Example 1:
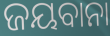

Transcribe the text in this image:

ଜୟବାନା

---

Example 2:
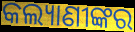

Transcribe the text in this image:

କଲ୍ୟାଣୀଙ୍କର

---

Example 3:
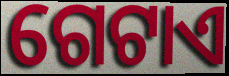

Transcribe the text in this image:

ଗେଟାଏ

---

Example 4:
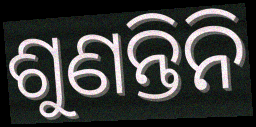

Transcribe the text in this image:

ଶୁଣନ୍ତିନି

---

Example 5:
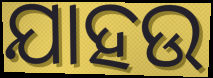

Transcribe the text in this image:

ଯାହଉ